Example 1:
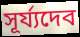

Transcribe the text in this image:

সূর্য্যদেব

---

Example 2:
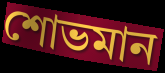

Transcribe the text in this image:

শোভমান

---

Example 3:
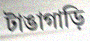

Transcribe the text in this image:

টাঙাগাড়ি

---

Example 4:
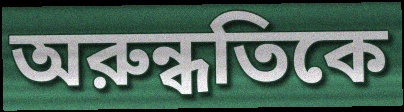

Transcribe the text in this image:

অরুন্ধতিকে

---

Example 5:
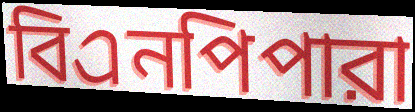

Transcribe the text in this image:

বিএনপিপারা